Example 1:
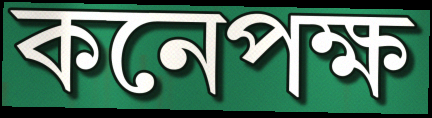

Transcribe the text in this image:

কনেপক্ষ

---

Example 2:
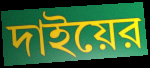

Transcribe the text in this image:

দাইয়ের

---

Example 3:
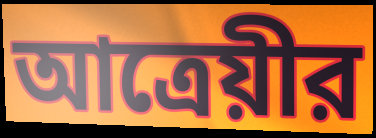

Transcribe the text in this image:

আত্রেয়ীর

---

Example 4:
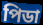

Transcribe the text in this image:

পিডা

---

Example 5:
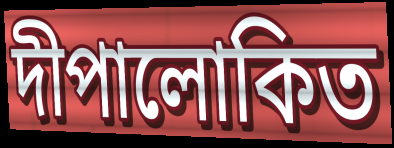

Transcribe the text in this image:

দীপালোকিত